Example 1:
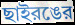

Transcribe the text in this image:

ছাইরঙের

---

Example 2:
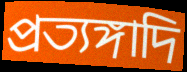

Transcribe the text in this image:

প্রত্যঙ্গাদি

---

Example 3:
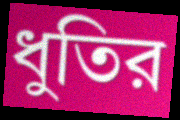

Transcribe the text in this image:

ধুতির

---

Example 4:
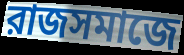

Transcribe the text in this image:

রাজসমাজে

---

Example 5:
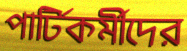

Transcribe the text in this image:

পার্টিকর্মীদের